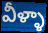
వీళ్ళా